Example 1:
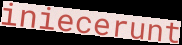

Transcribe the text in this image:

iniecerunt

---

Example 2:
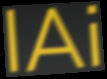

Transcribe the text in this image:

IAi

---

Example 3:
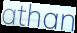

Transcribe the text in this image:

athan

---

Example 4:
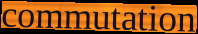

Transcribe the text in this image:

commutation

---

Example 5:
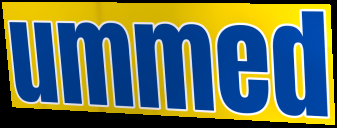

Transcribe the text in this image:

ummed